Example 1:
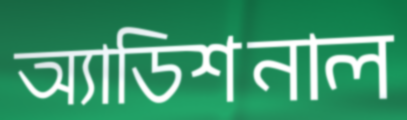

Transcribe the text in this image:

অ্যাডিশনাল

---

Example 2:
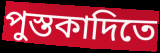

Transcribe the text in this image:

পুস্তকাদিতে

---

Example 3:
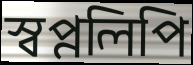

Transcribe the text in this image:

স্বপ্নলিপি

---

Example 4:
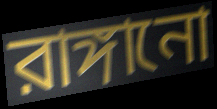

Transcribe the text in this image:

রাঙ্গানো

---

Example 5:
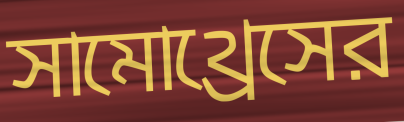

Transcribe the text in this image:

সামোথ্রেসের